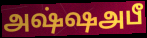
அஷ்ஷஅபீ